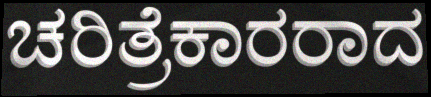
ಚರಿತ್ರೆಕಾರರಾದ